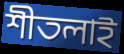
শীতলাই